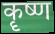
कॄष्ण